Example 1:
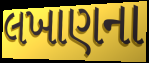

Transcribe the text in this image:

લખાણના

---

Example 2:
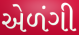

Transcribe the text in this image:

એળંગી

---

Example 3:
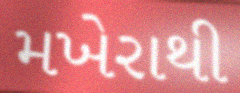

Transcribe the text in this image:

મખેરાથી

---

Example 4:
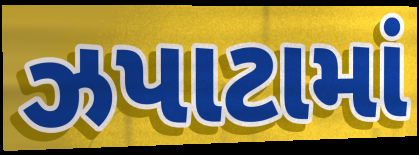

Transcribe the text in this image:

ઝપાટામાં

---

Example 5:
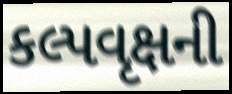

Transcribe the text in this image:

કલ્પવૃક્ષની